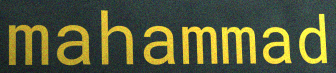
mahammad